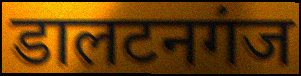
डालटनगंज